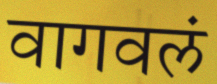
वागवलं